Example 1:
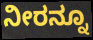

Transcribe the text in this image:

ನೀರನ್ನೂ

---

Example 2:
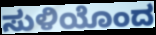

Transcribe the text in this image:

ಸುಳಿಯೊಂದ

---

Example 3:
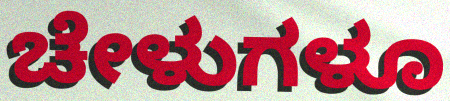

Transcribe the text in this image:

ಚೇಳುಗಳೂ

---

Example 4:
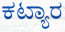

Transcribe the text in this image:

ಕಟ್ಯಾರ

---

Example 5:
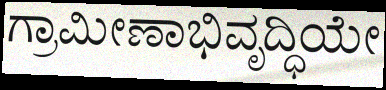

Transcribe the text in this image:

ಗ್ರಾಮೀಣಾಭಿವೃದ್ಧಿಯೇ